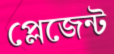
প্লেজেন্ট